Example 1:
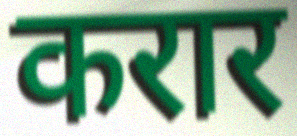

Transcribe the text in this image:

करार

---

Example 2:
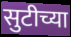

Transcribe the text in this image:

सुटीच्या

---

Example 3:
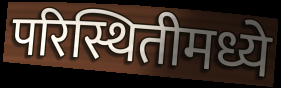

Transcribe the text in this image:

परिस्थितीमध्ये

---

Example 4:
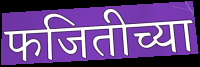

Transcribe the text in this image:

फजितीच्या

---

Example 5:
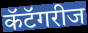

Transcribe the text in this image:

कॅटॅगरीज